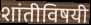
शांतीविषयी